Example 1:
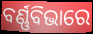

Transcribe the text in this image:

ବର୍ଣ୍ଣବିଭାରେ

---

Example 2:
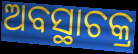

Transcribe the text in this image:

ଅବସ୍ଥାଚକ୍ର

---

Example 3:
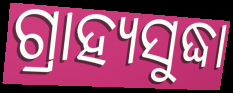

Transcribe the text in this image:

ଗ୍ରାହ୍ୟସୁଦ୍ଧା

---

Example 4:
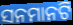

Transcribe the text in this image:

ସନମାନଟି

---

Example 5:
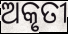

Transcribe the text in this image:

ଅକୃତୀ